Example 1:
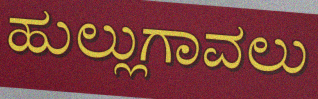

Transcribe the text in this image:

ಹುಲ್ಲುಗಾವಲು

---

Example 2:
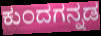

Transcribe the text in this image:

ಕುಂದಗನ್ನಡ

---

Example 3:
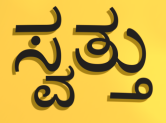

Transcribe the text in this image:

ಸ್ವತ್ತು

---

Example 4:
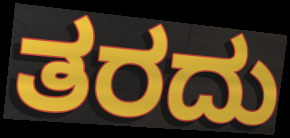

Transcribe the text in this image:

ತರದು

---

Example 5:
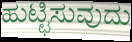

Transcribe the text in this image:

ಹುಟ್ಟಿಸುವುದು